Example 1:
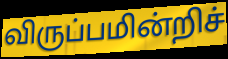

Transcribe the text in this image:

விருப்பமின்றிச்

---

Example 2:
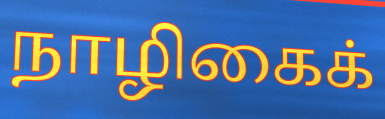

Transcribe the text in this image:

நாழிகைக்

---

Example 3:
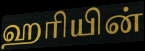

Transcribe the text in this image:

ஹரியின்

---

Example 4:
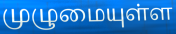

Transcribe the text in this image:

முழுமையுள்ள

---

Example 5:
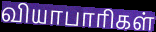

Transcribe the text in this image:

வியாபாரிகள்